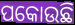
ପକୋଉଛି